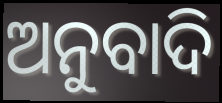
ଅନୁବାଦି